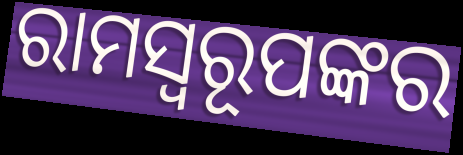
ରାମସ୍ୱରୂପଙ୍କର